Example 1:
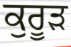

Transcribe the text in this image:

ਕੁਰੂੜ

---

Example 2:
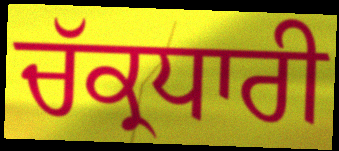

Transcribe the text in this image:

ਚੱਕ੍ਰਧਾਰੀ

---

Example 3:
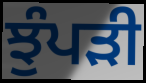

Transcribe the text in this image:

ਝੁੰਪੜੀ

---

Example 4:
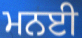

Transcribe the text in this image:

ਮਨਈ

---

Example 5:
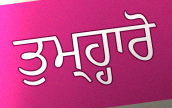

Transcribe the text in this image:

ਤੁਮ੍ਹ੍ਹਾਰੋ